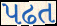
પઢત